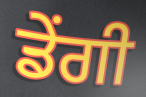
ਡੇਂਗੀ